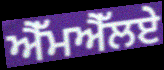
ਐੱਮਐੱਲਏ